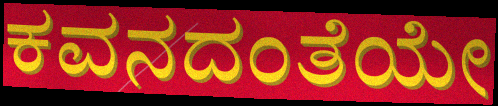
ಕವನದಂತೆಯೇ